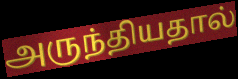
அருந்தியதால்